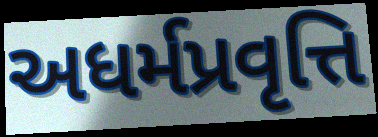
અધર્મપ્રવૃત્તિ